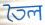
তৈল